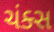
ચંક્સ